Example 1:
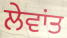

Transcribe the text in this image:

ਲੇਵਾਂਤ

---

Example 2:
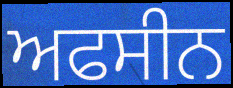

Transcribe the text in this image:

ਅਫਸੀਨ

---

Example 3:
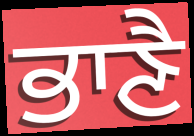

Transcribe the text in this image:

ਭਾਣੈ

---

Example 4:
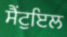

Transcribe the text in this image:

ਸੈਂਟੁਇਲ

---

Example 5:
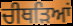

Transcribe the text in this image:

ਚੀਥੜਿਆਂ